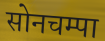
सोनचम्पा